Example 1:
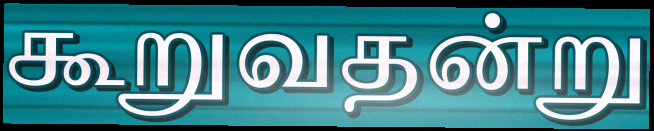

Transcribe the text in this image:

கூறுவதன்று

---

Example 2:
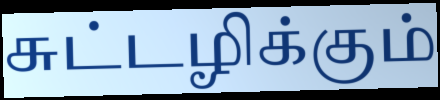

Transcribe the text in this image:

சுட்டழிக்கும்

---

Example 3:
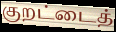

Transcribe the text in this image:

குறட்டைத்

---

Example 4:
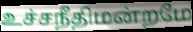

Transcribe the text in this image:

உச்சநீதிமன்றமே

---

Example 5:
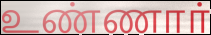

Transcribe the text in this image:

உண்ணார்